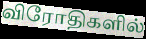
விரோதிகளில்